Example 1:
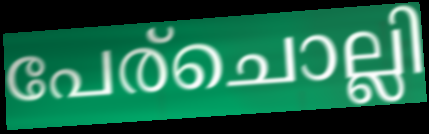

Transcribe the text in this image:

പേര്ചൊല്ലി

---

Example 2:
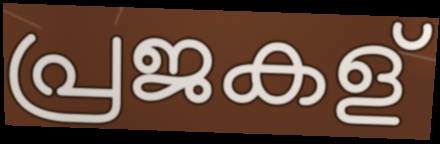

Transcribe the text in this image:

പ്രജകള്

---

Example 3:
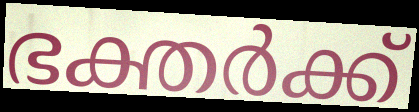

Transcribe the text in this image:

ഭക്തർക്ക്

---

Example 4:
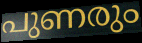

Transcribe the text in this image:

പുണരും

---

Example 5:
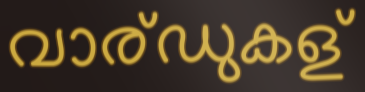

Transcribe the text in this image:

വാര്ഡുകള്